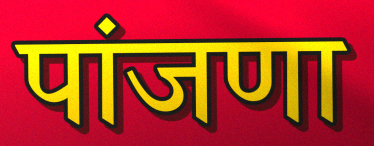
पांजणा